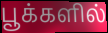
பூக்களில்